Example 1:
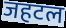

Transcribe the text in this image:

जहटल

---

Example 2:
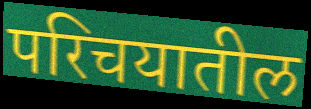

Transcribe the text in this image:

परिचयातील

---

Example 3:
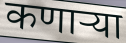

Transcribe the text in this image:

कणाऱ्या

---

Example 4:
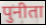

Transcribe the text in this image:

पुनीता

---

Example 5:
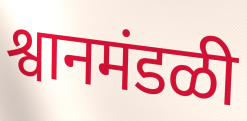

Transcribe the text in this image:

श्वानमंडळी